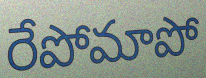
రేపోమాపో